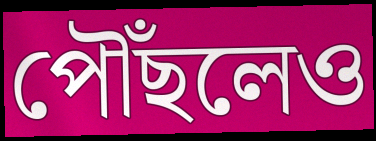
পৌঁছলেও